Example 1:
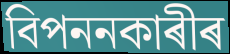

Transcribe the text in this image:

বিপননকাৰীৰ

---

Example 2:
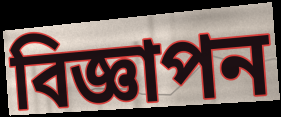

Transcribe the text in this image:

বিজ্ঞাপন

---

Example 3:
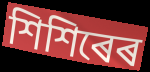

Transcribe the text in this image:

শিশিৰেৰ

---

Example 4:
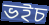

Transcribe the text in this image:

ভইচ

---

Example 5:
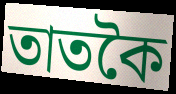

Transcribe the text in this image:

তাতকৈ